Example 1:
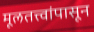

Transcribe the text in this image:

मूलतत्त्वांपासून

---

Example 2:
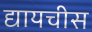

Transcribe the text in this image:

द्यायचीस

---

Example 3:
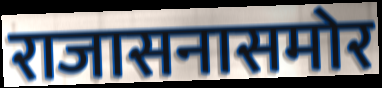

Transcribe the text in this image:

राजासनासमोर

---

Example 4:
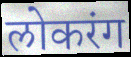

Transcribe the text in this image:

लोकरंग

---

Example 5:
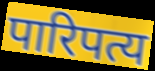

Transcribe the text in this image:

पारिपत्य